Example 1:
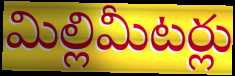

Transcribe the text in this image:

మిల్లిమీటర్లు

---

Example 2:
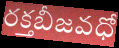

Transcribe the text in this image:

రక్తబీజవధో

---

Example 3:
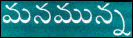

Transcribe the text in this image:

మనమున్న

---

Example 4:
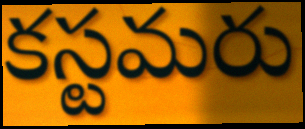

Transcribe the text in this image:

కస్టమరు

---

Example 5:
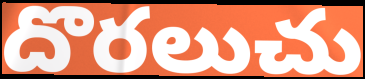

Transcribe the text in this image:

దొరలుచు